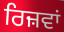
ਰਿਜ਼ਵਾਂ